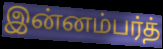
இன்னம்பர்த்